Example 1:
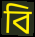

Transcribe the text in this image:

বি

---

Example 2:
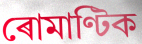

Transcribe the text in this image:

ৰোমাণ্টিক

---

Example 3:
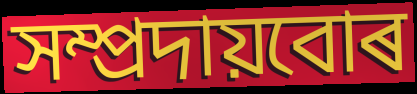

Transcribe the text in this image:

সম্প্ৰদায়বোৰ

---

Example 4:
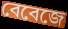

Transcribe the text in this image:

বেবেজে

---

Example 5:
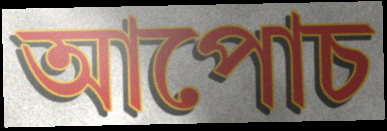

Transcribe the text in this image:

আপোচ